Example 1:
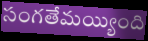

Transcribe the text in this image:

సంగతేమయ్యింది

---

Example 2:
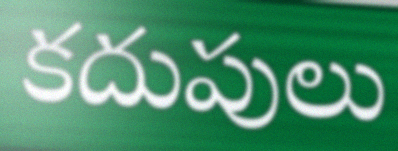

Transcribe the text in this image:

కదుపులు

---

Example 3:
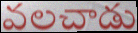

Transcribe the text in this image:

వలచాడు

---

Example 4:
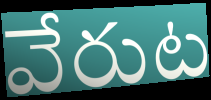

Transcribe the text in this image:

వేరుట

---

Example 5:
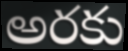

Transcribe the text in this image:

అరకు